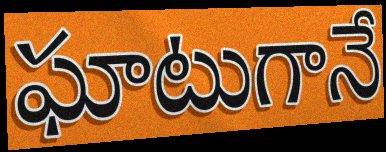
ఘాటుగానే